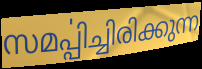
സമൎപ്പിച്ചിരിക്കുന്ന